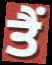
ਤੈਂ